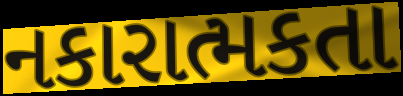
નકારાત્મકતા